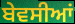
ਬੇਵਸੀਆਂ